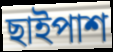
ছাইপাশ